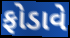
ફોડાવે